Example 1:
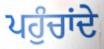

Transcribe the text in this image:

ਪਹੁੰਚਾਂਦੇ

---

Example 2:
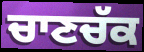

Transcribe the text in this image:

ਚਾਣਚੱਕ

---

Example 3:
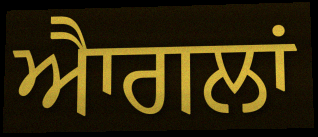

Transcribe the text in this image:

ਐਾਗਲਾਂ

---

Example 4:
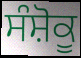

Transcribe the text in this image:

ਸੰਸ਼ੋਕੂ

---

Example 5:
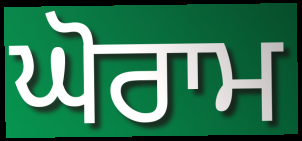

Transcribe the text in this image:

ਘੋਰਾਮ